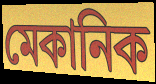
মেকানিক